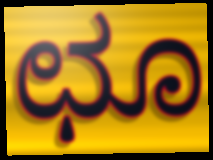
ಛೂ